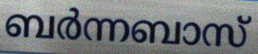
ബർന്നബാസ്